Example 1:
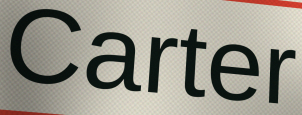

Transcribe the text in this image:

Carter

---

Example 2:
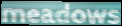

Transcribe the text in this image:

meadows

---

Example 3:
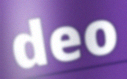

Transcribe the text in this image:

deo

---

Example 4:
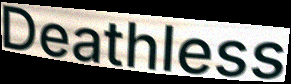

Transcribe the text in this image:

Deathless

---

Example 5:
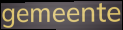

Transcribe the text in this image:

gemeente